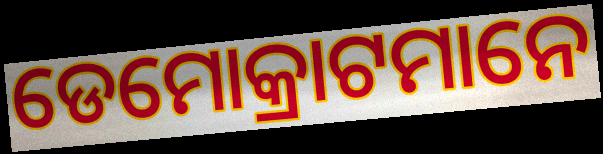
ଡେମୋକ୍ରାଟମାନେ